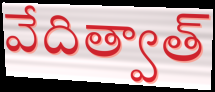
వేదిత్వాత్